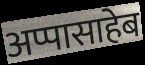
अप्पासाहेब